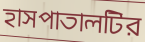
হাসপাতালটির